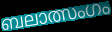
ബലാത്സംഗം